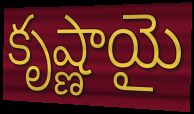
కృష్ణాయై